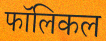
फॉलिकल